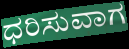
ಧರಿಸುವಾಗ